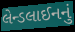
લેન્ડલાઈનનું